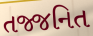
તજ્જનિત